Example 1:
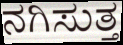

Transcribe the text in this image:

ನಗಿಸುತ್ತ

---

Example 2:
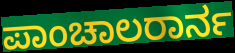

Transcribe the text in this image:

ಪಾಂಚಾಲರಾರ್ನ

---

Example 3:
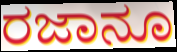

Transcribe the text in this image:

ರಜಾನೂ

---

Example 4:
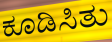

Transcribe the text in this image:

ಕೂಡಿಸಿತು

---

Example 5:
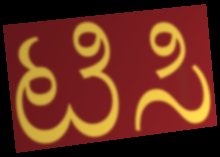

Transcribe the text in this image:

ಟಿಸಿ